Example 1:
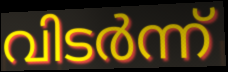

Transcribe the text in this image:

വിടർന്ന്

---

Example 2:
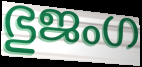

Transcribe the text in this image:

ഭുജംഗ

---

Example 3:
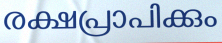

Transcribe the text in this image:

രക്ഷപ്രാപിക്കും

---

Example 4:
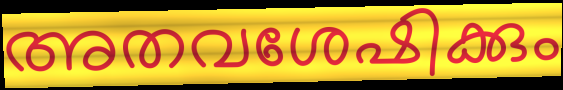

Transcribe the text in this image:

അതവശേഷിക്കും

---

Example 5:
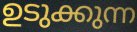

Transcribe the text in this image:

ഉടുക്കുന്ന